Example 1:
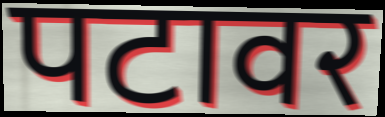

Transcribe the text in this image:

पटावर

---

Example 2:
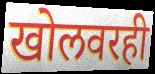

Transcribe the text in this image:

खोलवरही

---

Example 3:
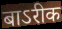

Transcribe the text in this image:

बाऽरीक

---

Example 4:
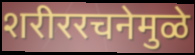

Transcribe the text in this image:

शरीररचनेमुळे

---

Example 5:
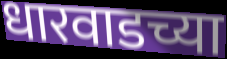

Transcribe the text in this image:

धारवाडच्या